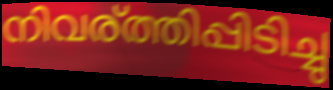
നിവര്ത്തിപ്പിടിച്ചു